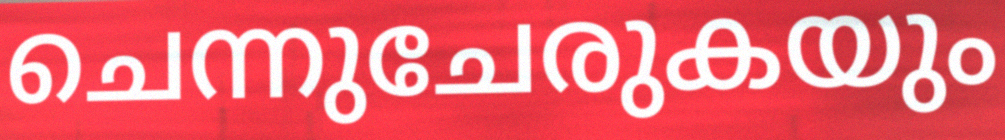
ചെന്നുചേരുകയും